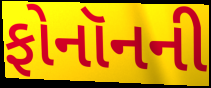
ફોનૉનની